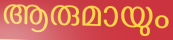
ആരുമായും